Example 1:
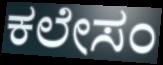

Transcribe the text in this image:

ಕಲೇಸಂ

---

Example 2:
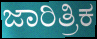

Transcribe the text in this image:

ಜಾರಿತ್ರಿಕ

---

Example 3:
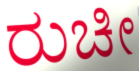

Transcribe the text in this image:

ರುಚೀ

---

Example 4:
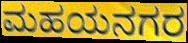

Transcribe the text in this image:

ಮಹಯನಗರ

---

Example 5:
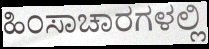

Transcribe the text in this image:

ಹಿಂಸಾಚಾರಗಳಲ್ಲಿ